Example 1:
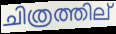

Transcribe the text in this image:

ചിത്രത്തില്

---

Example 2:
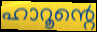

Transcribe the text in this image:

ഹാറൂന്റെ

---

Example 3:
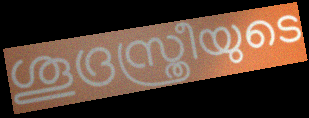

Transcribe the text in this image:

ശൂദ്രസ്ത്രീയുടെ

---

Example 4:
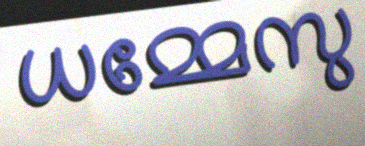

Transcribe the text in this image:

ധമ്മേസു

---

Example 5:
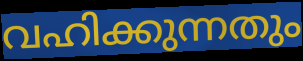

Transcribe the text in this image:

വഹിക്കുന്നതും